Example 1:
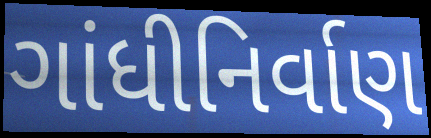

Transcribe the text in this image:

ગાંધીનિર્વાણ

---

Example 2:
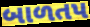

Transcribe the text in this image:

બાળતપ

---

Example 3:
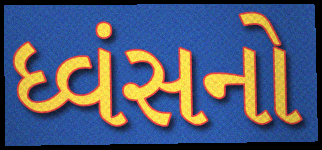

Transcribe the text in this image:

ધ્વંસનો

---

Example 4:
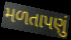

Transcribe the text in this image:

મળતાપણું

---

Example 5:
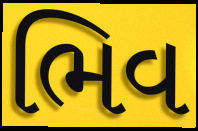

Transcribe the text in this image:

ભિવ